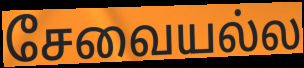
சேவையல்ல